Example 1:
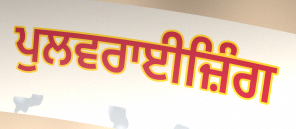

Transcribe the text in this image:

ਪੁਲਵਰਾਈਜ਼ਿੰਗ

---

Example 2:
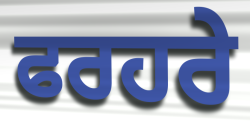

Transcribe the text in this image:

ਫਰਹਰੇ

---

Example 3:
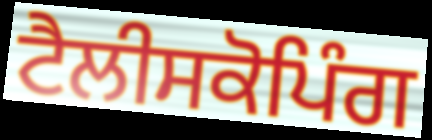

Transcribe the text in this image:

ਟੈਲੀਸਕੋਪਿੰਗ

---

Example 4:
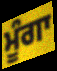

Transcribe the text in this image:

ਮੂੰਗਾ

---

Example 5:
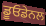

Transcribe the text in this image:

ਡੂਓਡੇਨਲ